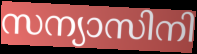
സന്യാസിനി